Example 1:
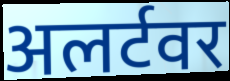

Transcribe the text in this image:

अलर्टवर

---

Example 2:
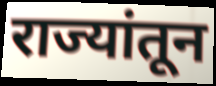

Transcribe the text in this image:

राज्यांतून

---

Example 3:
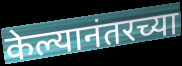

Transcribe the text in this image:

केल्यानंतरच्या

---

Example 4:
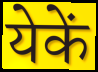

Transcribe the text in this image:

येकें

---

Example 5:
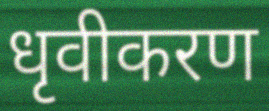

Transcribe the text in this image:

धृवीकरण